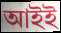
আইই